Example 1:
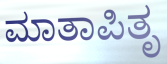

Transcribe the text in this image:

ಮಾತಾಪಿತೃ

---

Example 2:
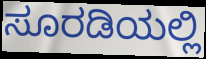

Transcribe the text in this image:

ಸೂರಡಿಯಲ್ಲಿ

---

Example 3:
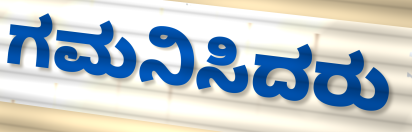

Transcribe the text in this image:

ಗಮನಿಸಿದರು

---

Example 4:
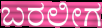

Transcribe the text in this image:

ಬರಲೀಗ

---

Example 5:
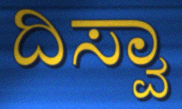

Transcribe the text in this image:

ದಿಸ್ವಾ